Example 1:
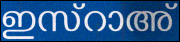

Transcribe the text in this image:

ഇസ്റാഅ്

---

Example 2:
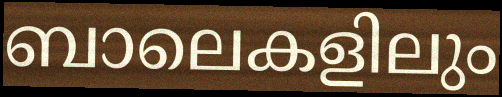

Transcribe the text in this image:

ബാലെകളിലും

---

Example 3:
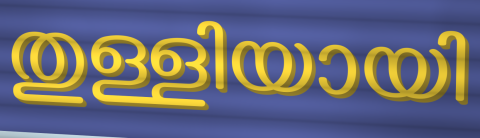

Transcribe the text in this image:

തുള്ളിയായി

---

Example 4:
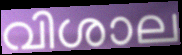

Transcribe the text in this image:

വിശാല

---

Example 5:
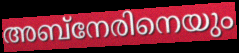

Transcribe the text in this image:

അബ്നേരിനെയും